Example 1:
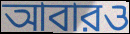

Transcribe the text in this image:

আবারও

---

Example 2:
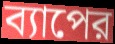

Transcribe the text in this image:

ব্যাপের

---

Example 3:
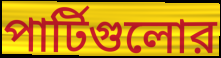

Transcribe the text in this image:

পার্টিগুলোর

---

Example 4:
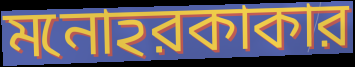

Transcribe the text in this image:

মনোহরকাকার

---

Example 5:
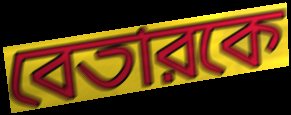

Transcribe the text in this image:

বেতারকে